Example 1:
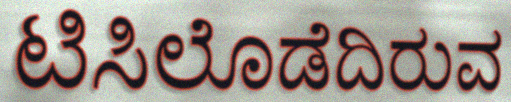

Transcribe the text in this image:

ಟಿಸಿಲೊಡೆದಿರುವ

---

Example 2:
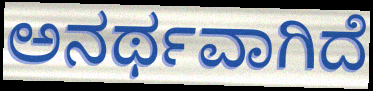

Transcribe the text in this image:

ಅನರ್ಥವಾಗಿದೆ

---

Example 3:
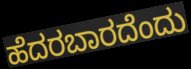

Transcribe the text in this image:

ಹೆದರಬಾರದೆಂದು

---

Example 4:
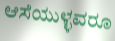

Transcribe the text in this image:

ಆಸೆಯುಳ್ಳವರೂ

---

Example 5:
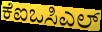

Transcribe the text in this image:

ಕೆಐಒಸಿಎಲ್